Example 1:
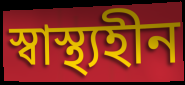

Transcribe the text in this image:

স্বাস্থ্যহীন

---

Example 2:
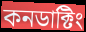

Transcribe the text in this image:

কনডাক্টিং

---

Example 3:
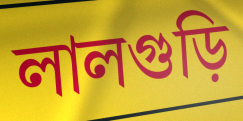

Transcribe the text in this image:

লালগুড়ি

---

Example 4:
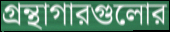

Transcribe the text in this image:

গ্রন্থাগারগুলোর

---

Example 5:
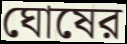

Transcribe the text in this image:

ঘোষের